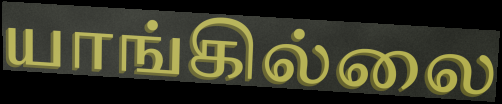
யாங்கில்லை